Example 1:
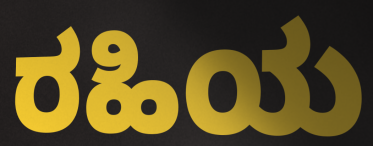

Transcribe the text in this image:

ರಹಿಯ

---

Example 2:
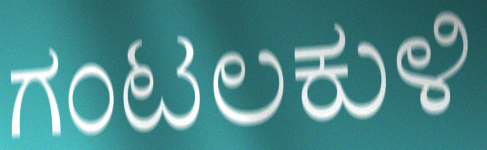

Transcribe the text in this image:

ಗಂಟಲಕುಳಿ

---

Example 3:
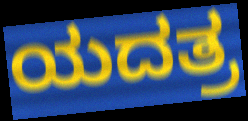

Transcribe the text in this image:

ಯದತ್ರ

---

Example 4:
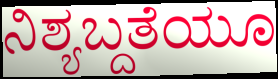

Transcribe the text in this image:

ನಿಶ್ಯಬ್ದತೆಯೂ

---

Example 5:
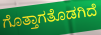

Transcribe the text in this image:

ಗೊತ್ತಾಗತೊಡಗಿದೆ